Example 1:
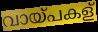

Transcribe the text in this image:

വായ്പകള്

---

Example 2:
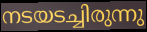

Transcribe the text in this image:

നടയടച്ചിരുന്നു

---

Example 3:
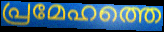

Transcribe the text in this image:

പ്രമേഹത്തെ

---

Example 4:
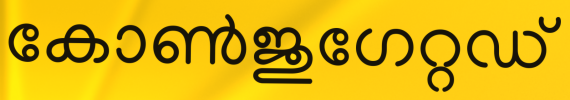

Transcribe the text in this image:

കോൺജുഗേറ്റഡ്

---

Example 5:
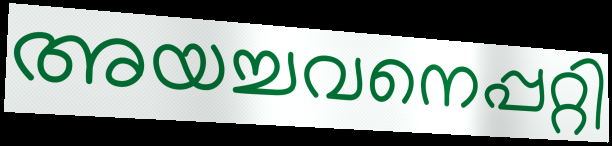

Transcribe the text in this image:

അയച്ചവനെപ്പറ്റി